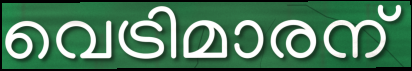
വെട്രിമാരന്